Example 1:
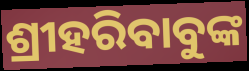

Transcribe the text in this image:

ଶ୍ରୀହରିବାବୁଙ୍କ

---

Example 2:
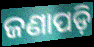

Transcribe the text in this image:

ଜଣାପଡ଼ି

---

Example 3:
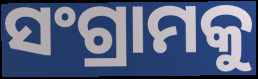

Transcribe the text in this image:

ସଂଗ୍ରାମକୁ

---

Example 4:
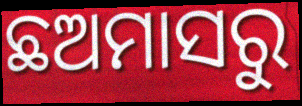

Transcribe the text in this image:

ଛଅମାସରୁ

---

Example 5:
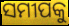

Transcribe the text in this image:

ସମୀପକୁ